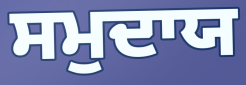
ਸਮੁਦਾਯ